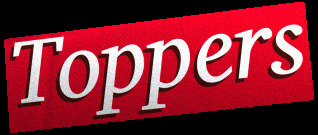
Toppers